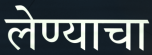
लेण्याचा